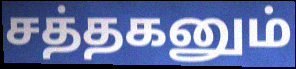
சத்தகனும்